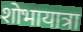
शोभायात्रा